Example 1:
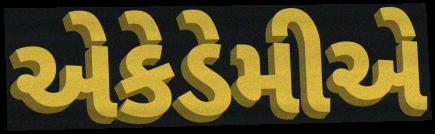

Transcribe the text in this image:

એકેડેમીએ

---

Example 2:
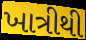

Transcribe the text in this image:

ખાત્રીથી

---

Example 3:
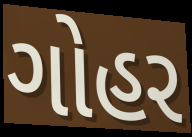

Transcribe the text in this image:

ગોહર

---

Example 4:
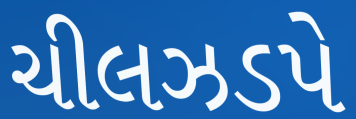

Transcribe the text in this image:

ચીલઝડપે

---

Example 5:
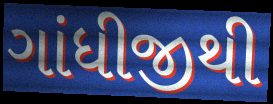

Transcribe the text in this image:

ગાંધીજીથી